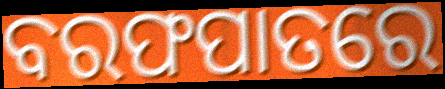
ବରଫପାତରେ